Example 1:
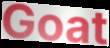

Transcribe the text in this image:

Goat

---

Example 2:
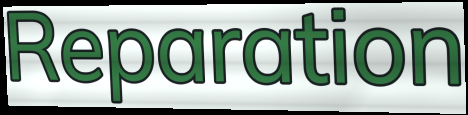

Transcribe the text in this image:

Reparation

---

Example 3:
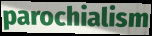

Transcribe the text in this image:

parochialism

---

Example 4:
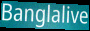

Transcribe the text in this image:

Banglalive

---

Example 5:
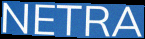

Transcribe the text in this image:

NETRA